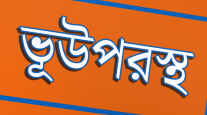
ভূউপরস্থ